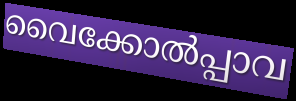
വൈക്കോൽപ്പാവ